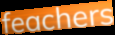
feachers